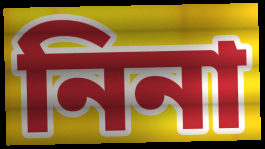
নিনা